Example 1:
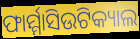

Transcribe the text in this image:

ଫାର୍ମ୍ମାସିଉଟିକ୍ୟାଲ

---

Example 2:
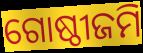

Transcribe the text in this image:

ଗୋଷ୍ଠୀଜମି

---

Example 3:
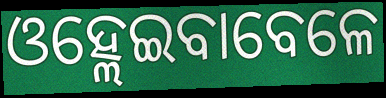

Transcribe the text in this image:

ଓହ୍ଲେଇବାବେଳେ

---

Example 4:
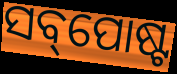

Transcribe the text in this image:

ସବ୍‌ପୋଷ୍ଟ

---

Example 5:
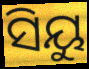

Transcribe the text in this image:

ସିୟୁ